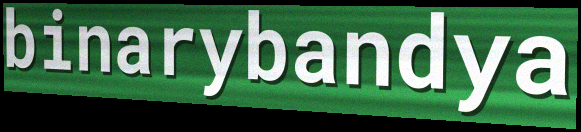
binarybandya